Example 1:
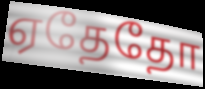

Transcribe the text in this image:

ஏதேதோ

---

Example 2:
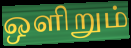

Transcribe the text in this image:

ஒளிறும்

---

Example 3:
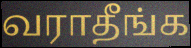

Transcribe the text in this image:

வராதீங்க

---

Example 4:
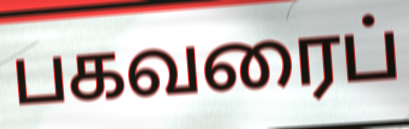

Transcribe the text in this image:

பகவரைப்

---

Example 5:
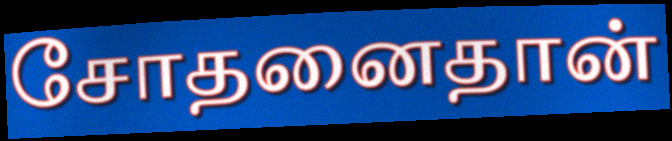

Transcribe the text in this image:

சோதனைதான்